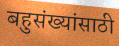
बहुसंख्यांसाठी